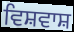
ਵਿਸ਼ਵਾਸ਼